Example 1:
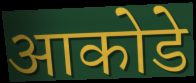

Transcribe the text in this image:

आकोडे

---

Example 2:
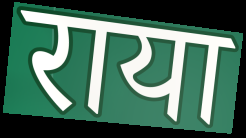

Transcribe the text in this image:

राया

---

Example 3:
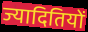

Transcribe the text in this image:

ज्यादितियों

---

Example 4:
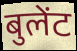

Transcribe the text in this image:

बुलेंट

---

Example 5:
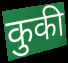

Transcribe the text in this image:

कुकी